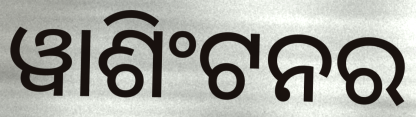
ୱାଶିଂଟନର